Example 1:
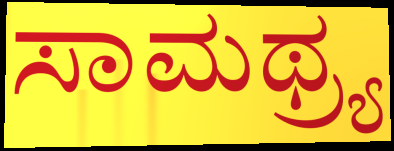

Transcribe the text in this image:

ಸಾಮಥ್ರ್ಯ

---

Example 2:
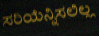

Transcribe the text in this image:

ಸರಿಯೆನ್ನಿಸಲಿಲ್ಲ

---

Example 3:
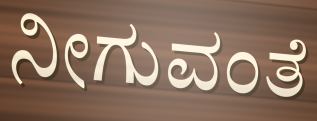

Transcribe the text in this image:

ನೀಗುವಂತೆ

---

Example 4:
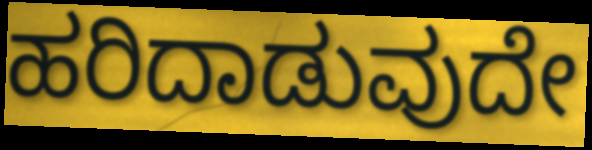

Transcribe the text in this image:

ಹರಿದಾಡುವುದೇ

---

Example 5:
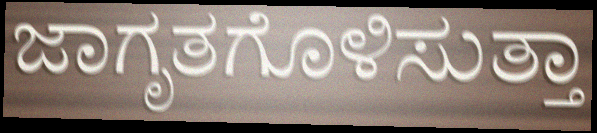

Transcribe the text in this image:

ಜಾಗೃತಗೊಳಿಸುತ್ತಾ